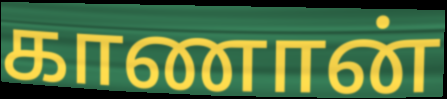
காணான்